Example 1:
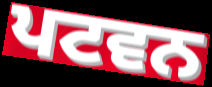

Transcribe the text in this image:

ਪਟਵਨ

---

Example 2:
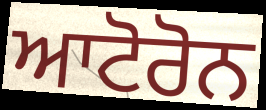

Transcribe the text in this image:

ਆਟੋਰੋਨ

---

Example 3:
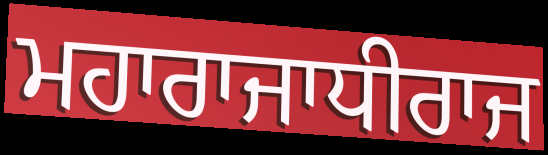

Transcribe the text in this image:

ਮਹਾਰਾਜਾਧੀਰਾਜ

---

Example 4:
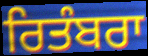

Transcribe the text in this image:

ਰਿਤੰਬਰਾ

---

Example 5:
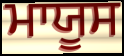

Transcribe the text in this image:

ਮਾਯੂਸ